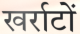
खर्राटों